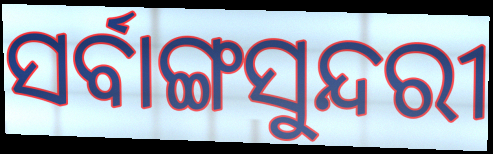
ସର୍ବାଙ୍ଗସୁନ୍ଦରୀ